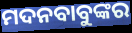
ମଦନବାବୁଙ୍କର